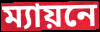
ম্যায়নে